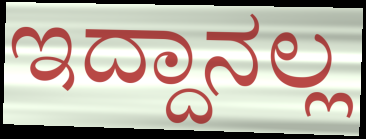
ಇದ್ದಾನಲ್ಲ